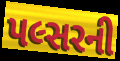
પલ્સરની